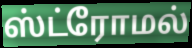
ஸ்ட்ரோமல்